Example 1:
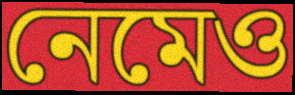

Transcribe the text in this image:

নেমেও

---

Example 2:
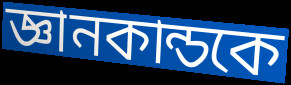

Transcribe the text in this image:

জ্ঞানকান্ডকে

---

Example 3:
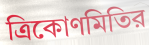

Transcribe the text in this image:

ত্রিকোণমিতির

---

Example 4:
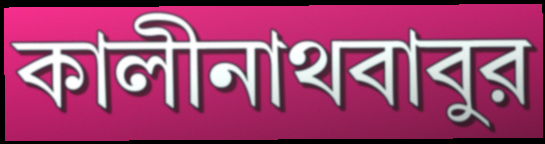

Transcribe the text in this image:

কালীনাথবাবুর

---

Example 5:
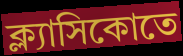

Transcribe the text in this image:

ক্ল্যাসিকোতে